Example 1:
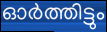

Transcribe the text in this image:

ഓർത്തിട്ടും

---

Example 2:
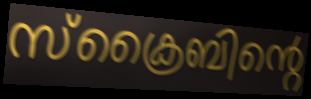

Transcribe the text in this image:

സ്ക്രൈബിന്റെ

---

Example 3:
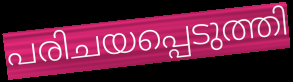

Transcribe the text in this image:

പരിചയപ്പെടുത്തി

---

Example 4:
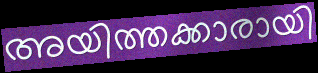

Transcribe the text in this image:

അയിത്തക്കാരായി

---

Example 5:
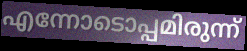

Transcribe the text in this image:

എന്നോടൊപ്പമിരുന്ന്